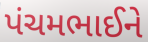
પંચમભાઈને